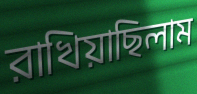
রাখিয়াছিলাম